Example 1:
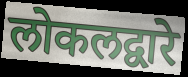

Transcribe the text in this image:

लोकलद्वारे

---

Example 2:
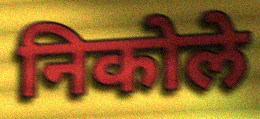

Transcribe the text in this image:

निकोले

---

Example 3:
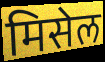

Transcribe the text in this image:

मिसेल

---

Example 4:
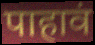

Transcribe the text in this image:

पाहावं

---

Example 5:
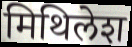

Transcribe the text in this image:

मिथिलेश